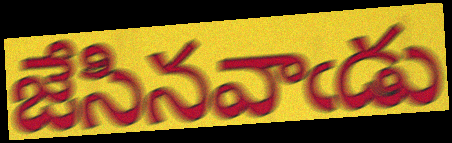
జేసినవాఁడు